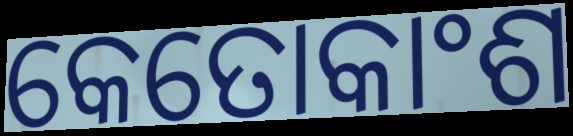
କେତୋକାଂଶ